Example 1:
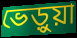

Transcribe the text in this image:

ভেড়ুয়া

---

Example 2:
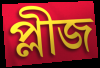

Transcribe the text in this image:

প্লীজ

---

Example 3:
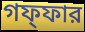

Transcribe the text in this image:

গফ্ফার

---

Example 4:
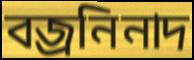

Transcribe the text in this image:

বজ্রনিনাদ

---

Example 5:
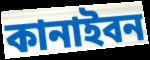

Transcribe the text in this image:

কানাইবন